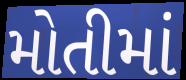
મોતીમાં